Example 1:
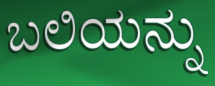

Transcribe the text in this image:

ಬಲಿಯನ್ನು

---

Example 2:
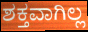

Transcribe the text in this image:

ಶಕ್ತವಾಗಿಲ್ಲ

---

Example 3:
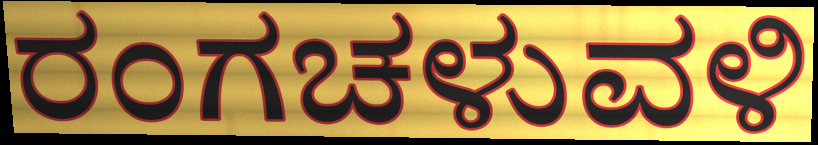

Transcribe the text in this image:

ರಂಗಚಳುವಳಿ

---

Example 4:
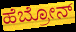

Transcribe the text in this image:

ಹೆಬ್ರೋನ್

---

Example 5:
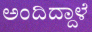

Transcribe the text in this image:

ಅಂದಿದ್ದಾಳೆ